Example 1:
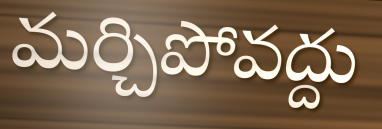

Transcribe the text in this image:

మర్చిపోవద్దు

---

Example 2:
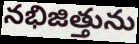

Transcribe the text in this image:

నభిజిత్తును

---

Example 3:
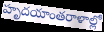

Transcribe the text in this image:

హృదయాంతరాళాల్లో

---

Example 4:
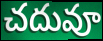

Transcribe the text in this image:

చదువూ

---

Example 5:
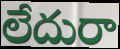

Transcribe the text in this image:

లేదురా